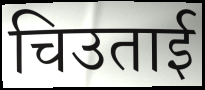
चिउताई